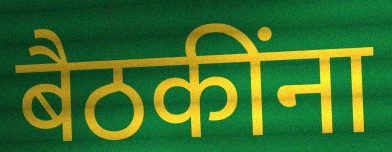
बैठकींना